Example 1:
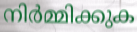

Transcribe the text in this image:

നിർമ്മിക്കുക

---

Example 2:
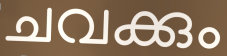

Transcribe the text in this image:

ചവക്കും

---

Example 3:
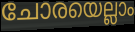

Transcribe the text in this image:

ചോരയെല്ലാം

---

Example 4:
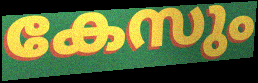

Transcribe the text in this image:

കേസും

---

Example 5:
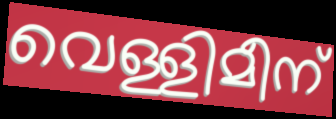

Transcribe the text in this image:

വെള്ളിമീന്